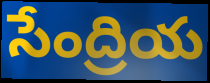
సేంద్రియ